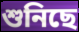
শুনিছে